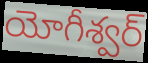
యోగీశ్వర్